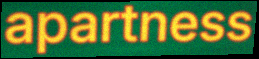
apartness